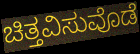
ಚಿತ್ತವಿಸುವೊಡೆ